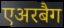
एअरबैग